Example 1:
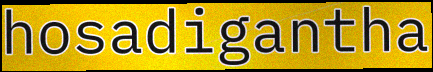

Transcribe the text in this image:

hosadigantha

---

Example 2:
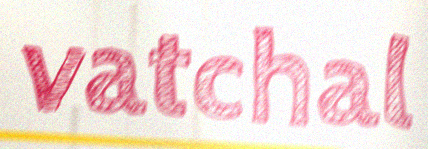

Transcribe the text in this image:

vatchal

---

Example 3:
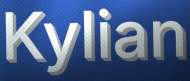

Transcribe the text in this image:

Kylian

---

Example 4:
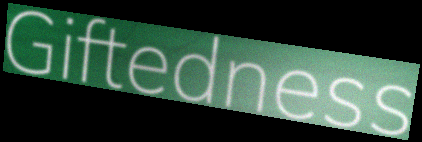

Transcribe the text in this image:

Giftedness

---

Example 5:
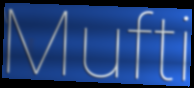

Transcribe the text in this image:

Mufti